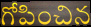
గోపించిన